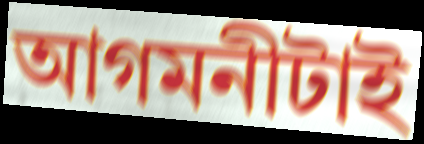
আগমনীটাই